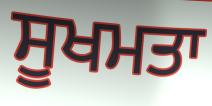
ਸੂਖਮਤਾ